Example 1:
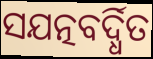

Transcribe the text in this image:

ସଯତ୍ନବର୍ଦ୍ଧିତ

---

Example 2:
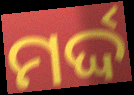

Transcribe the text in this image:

ମର୍ଦ୍ଦ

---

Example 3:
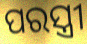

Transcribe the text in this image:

ପରସ୍ତ୍ରୀ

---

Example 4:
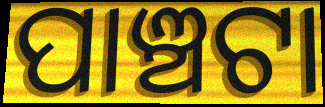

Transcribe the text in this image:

ପାଞ୍ଚଟା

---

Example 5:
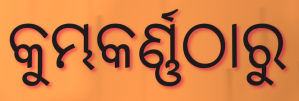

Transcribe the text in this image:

କୁମ୍ଭକର୍ଣ୍ଣଠାରୁ